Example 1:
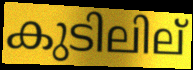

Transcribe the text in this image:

കുടിലില്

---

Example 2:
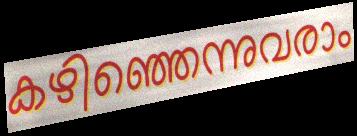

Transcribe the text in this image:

കഴിഞ്ഞെന്നുവരാം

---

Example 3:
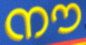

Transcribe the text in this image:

നൗ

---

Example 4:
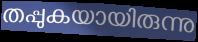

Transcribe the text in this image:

തപ്പുകയായിരുന്നു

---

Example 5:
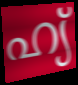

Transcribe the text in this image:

ഹ്യ്